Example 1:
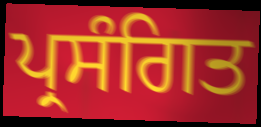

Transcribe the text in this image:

ਪ੍ਰਸੰਗਿਤ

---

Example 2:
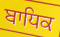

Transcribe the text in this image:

ਬਾਧਿਕ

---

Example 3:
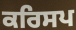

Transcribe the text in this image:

ਕਰਿਸਪ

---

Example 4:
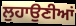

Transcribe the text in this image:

ਲੁਹਾਉਣੀਆਂ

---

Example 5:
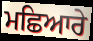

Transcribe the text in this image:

ਮਛਿਆਰੇ